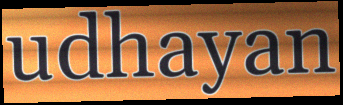
udhayan